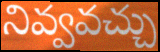
నివ్వవచ్చు